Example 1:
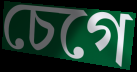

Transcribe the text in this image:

চেগে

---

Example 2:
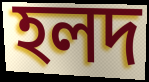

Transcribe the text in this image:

হলদ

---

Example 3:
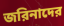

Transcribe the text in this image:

জরিনাদের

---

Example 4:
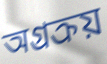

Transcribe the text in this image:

অগ্রক্রয়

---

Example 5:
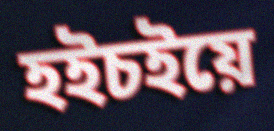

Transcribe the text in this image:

হইচইয়ে